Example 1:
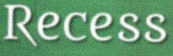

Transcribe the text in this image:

Recess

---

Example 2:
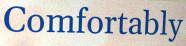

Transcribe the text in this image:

Comfortably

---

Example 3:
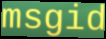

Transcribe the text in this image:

msgid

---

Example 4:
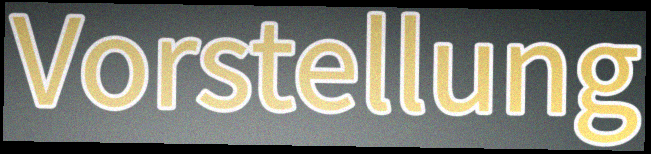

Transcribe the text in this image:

Vorstellung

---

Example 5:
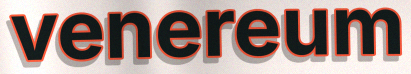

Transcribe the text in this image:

venereum